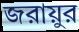
জরায়ুর